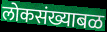
लोकसंख्याबळ